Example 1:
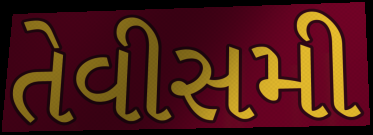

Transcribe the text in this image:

તેવીસમી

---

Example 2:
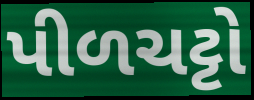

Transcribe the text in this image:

પીળચટ્ટો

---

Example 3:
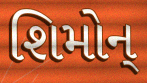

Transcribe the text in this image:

શિમોન્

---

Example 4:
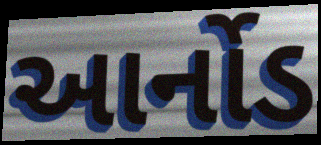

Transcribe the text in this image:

આર્નોડ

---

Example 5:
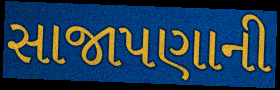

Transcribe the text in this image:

સાજાપણાની